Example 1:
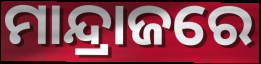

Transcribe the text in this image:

ମାନ୍ଦ୍ରାଜରେ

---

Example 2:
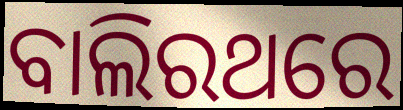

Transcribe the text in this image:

ବାଲିରଥରେ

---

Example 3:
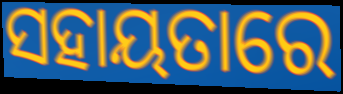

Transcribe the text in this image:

ସହାୟତାରେ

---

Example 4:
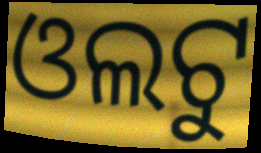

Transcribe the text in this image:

ଓଲଟୁ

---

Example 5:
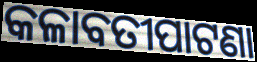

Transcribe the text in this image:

କଳାବତୀପାଟଣା